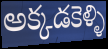
అక్కడకెళ్ళి